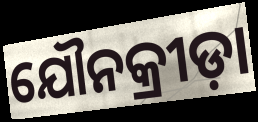
ଯୌନକ୍ରୀଡ଼ା